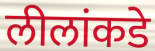
लीलांकडे